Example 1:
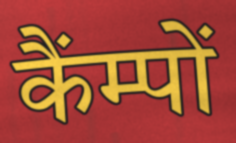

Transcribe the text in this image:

कैंम्पों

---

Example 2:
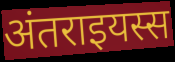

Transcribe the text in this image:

अंतराइयस्स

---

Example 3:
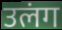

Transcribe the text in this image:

उलंग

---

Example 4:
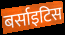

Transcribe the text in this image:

बर्साइटिस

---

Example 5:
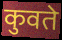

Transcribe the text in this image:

कुवते